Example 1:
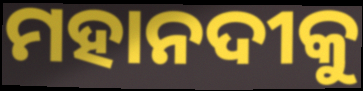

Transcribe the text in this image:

ମହାନଦୀକୁ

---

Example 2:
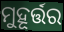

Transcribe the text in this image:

ମୁହୂର୍ତ୍ତର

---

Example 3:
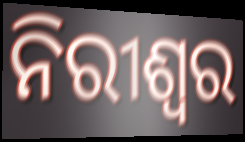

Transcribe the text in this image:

ନିରୀଶ୍ୱର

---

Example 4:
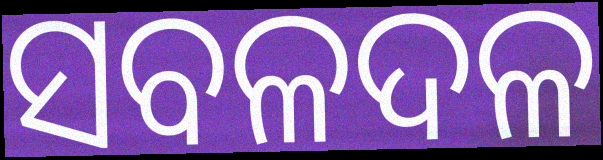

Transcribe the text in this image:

ସବଳଦଳ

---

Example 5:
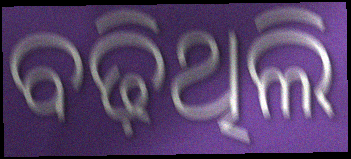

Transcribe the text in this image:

ବଢ଼ିଥିଲି